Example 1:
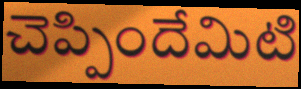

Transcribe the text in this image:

చెప్పిందేమిటి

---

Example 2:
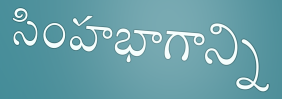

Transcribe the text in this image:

సింహభాగాన్ని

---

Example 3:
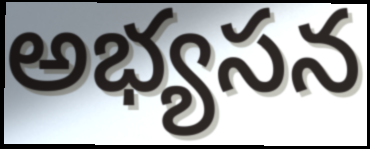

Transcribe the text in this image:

అభ్యసన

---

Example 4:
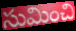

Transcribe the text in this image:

సుమించి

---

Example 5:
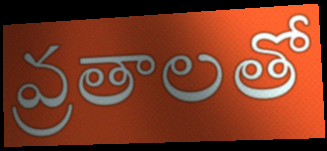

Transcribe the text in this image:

వ్రతాలతో